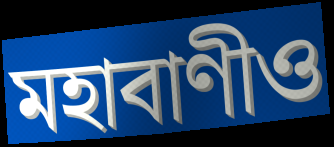
মহাবাণীও